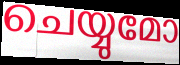
ചെയ്യുമോ